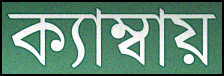
ক্যাম্বায়